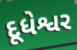
દૂધેશ્વર